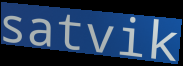
satvik